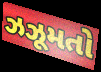
ઝઝૂમતો